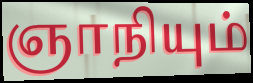
ஞாநியும்